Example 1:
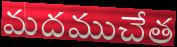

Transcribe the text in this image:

మదముచేత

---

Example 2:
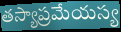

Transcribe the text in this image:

తస్యాప్రమేయస్య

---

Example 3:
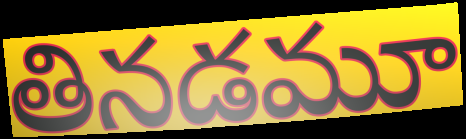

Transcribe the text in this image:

తినడమూ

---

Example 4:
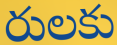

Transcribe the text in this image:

రులకు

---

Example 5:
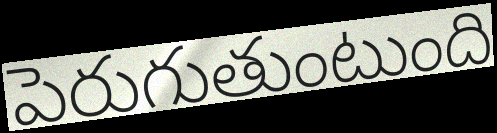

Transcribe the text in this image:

పెరుగుతుంటుంది